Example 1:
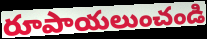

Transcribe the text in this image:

రూపాయలుంచండి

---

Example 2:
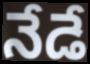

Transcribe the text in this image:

నేడే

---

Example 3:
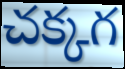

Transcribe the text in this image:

చక్కగ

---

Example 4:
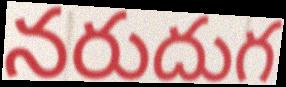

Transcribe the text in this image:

నరుదుగ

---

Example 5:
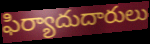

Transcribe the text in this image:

ఫిర్యాదుదారులు